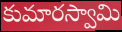
కుమారస్వామి